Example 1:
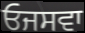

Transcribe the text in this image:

ਓਜਸਵਾ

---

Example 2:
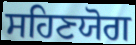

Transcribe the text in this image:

ਸਹਿਣਯੋਗ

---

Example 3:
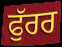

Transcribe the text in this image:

ਫੁੱਰਰ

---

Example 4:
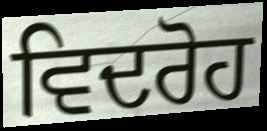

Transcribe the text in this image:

ਵਿਦਰੋਹ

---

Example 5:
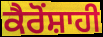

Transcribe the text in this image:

ਕੈਰੋਂਸ਼ਾਹੀ